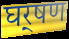
घर्षण